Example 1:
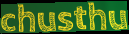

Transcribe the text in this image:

chusthu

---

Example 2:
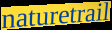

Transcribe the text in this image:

naturetrail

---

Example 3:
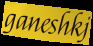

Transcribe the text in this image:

ganeshkj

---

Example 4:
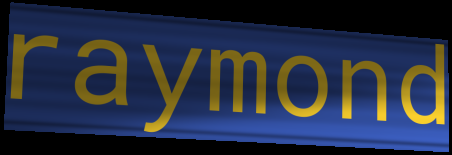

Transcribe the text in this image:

raymond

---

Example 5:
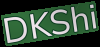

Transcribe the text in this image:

DKShi